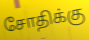
சோதிக்கு